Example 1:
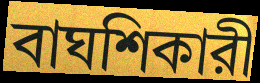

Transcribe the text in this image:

বাঘশিকারী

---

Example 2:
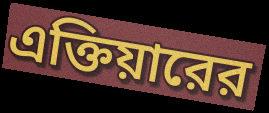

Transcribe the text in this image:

এক্তিয়ারের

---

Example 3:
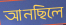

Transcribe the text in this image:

আনছিলে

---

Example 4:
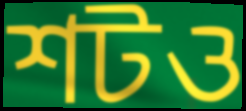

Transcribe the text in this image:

শটও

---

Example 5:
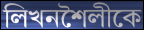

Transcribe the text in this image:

লিখনশৈলীকে